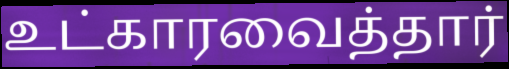
உட்காரவைத்தார்